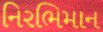
નિરભિમાન